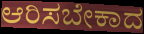
ಆರಿಸಬೇಕಾದ